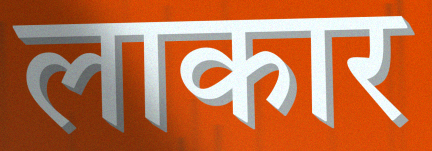
लाकार